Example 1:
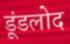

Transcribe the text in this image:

डूंडलोद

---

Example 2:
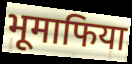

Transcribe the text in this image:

भूमाफिया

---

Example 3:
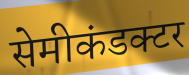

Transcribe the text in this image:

सेमीकंडक्टर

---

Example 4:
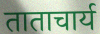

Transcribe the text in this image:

ताताचार्य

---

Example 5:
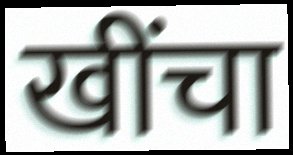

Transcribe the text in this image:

खींचा